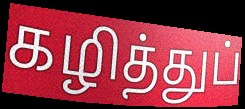
கழித்துப்